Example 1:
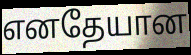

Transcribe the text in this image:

எனதேயான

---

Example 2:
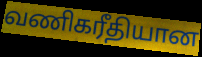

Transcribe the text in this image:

வணிகரீதியான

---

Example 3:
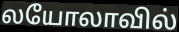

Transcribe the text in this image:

லயோலாவில்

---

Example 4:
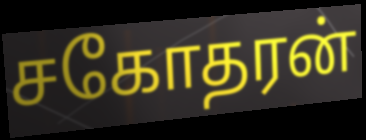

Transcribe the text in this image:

சகோதரன்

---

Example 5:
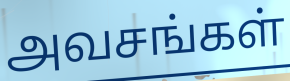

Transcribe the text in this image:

அவசங்கள்